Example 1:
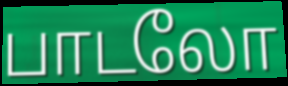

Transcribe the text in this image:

பாடலோ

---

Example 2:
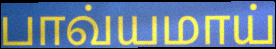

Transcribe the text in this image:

பாவ்யமாய்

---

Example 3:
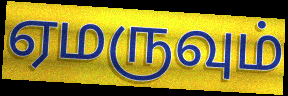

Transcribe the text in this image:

ஏமருவும்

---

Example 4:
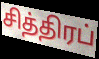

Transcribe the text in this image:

சித்திரப்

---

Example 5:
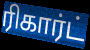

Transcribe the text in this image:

ரிகார்ட்